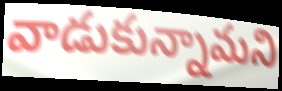
వాడుకున్నామని